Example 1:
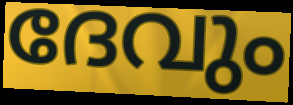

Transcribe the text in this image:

ദേവും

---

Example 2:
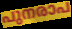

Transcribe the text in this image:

പുനരാപ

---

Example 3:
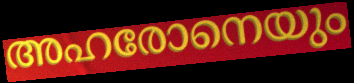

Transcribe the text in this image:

അഹരോനെയും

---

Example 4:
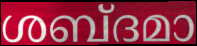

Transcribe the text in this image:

ശബ്ദമാ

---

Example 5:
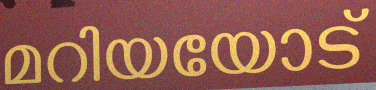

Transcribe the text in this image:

മറിയയോട്